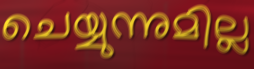
ചെയ്യുന്നുമില്ല